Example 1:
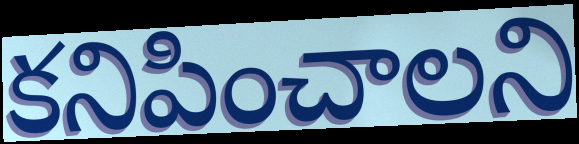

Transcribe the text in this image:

కనిపించాలని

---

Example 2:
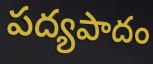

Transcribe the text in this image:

పద్యపాదం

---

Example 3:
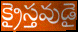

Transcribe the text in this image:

క్రైస్తవుడై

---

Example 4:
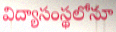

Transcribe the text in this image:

విద్యాసంస్థలోనూ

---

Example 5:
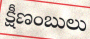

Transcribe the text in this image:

క్షీణంబులు